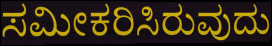
ಸಮೀಕರಿಸಿರುವುದು